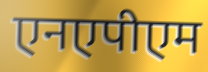
एनएपीएम